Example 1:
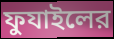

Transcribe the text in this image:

ফুযাইলের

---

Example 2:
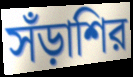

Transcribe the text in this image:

সঁড়াশির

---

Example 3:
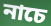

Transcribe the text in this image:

নাচে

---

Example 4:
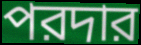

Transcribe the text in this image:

পরদার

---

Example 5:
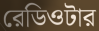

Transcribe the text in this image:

রেডিওটার